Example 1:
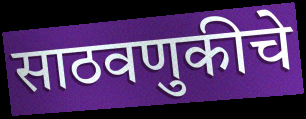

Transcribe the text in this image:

साठवणुकीचे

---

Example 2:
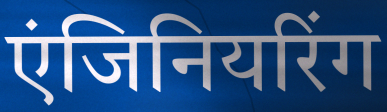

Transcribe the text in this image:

एंजिनियरिंग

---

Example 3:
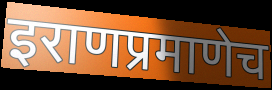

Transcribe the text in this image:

इराणप्रमाणेच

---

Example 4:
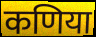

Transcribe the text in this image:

कणिया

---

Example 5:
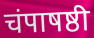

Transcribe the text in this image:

चंपाषष्ठी